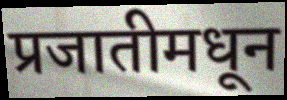
प्रजातीमधून